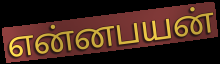
என்னபயன்